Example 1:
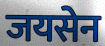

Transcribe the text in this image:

जयसेन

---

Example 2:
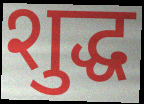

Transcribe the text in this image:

शुद्ध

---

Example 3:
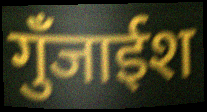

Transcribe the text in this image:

गुँजाईश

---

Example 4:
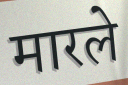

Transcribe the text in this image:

मारले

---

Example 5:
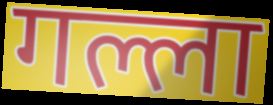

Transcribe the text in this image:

गल्ला